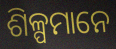
ଶିଳ୍ପମାନେ